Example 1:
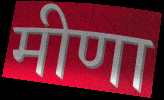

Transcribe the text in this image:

मीणा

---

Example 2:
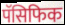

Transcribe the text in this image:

पॅसिफिक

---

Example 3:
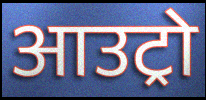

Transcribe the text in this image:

आउट्रो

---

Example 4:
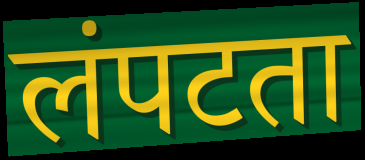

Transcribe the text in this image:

लंपटता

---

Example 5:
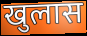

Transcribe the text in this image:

खुलास